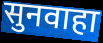
सुनवाहा